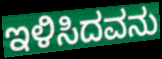
ಇಳಿಸಿದವನು